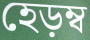
হেড়ম্ব